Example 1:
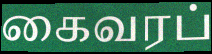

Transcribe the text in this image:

கைவரப்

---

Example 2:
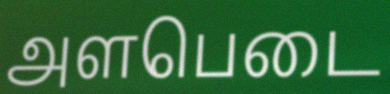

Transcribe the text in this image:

அளபெடை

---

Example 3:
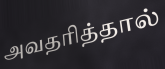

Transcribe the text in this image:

அவதரித்தால்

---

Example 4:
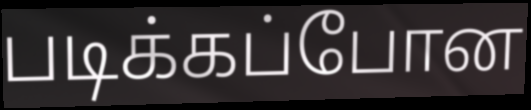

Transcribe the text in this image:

படிக்கப்போன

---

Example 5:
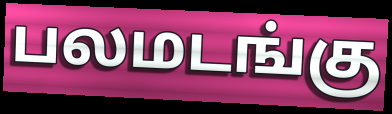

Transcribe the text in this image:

பலமடங்கு